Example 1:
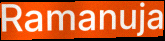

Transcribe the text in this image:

Ramanuja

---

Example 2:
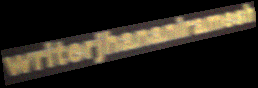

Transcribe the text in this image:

writerjhananiramesh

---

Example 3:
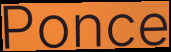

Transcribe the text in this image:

Ponce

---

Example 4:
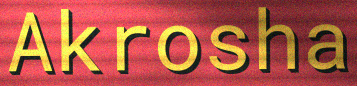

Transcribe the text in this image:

Akrosha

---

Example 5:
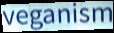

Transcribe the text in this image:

veganism